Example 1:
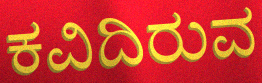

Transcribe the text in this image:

ಕವಿದಿರುವ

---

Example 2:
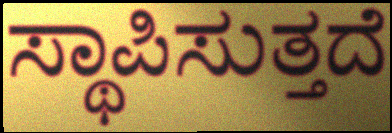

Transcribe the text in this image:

ಸ್ಥಾಪಿಸುತ್ತದೆ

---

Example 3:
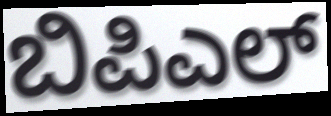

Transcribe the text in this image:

ಬಿಪಿಎಲ್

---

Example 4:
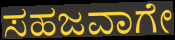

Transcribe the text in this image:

ಸಹಜವಾಗೇ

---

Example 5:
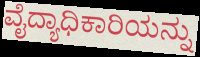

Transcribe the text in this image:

ವೈದ್ಯಾಧಿಕಾರಿಯನ್ನು